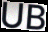
UB